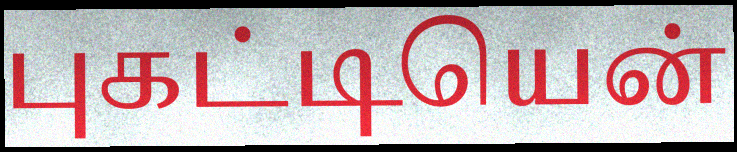
புகட்டியென்